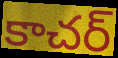
కాచర్